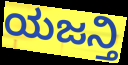
ಯಜನ್ತಿ